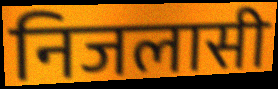
निजलासी